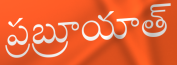
ప్రబ్రూయాత్